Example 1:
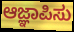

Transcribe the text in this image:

ಆಜ್ಞಾಪಿಸು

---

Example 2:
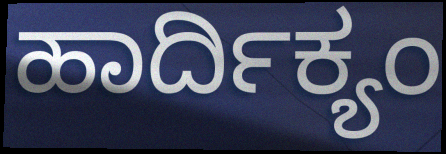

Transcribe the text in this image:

ಹಾರ್ದಿಕ್ಯಂ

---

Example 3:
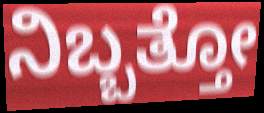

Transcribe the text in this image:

ನಿಬ್ಬತ್ತೋ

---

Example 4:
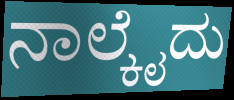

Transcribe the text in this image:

ನಾಲ್ಕೈದು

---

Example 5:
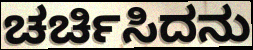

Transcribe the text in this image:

ಚರ್ಚಿಸಿದನು